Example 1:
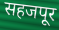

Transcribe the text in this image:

सहजपूर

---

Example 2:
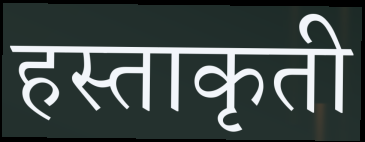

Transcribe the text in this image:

हस्ताकृती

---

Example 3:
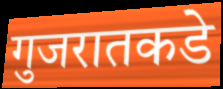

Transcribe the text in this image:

गुजरातकडे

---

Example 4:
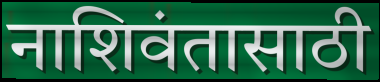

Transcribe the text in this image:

नाशिवंतासाठी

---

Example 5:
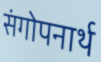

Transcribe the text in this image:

संगोपनार्थ